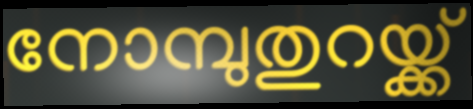
നോമ്പുതുറയ്ക്ക്